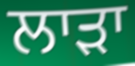
ਲਾੜਾ